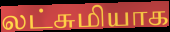
லட்சுமியாக